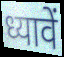
ध्यावें